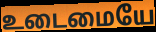
உடைமையே